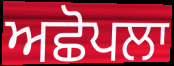
ਅਛੋਪਲਾ